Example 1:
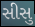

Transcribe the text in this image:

સીસુ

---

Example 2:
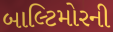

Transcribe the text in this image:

બાલ્ટિમોરની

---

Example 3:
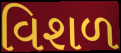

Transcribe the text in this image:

વિશળ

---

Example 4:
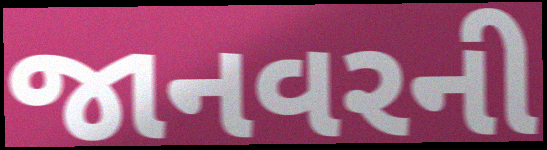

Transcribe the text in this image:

જાનવરની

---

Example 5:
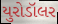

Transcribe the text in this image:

યુરોડૉલર